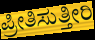
ಪ್ರೀತಿಸುತ್ತೀರಿ